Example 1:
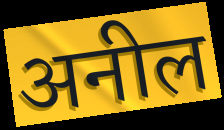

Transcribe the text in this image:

अनील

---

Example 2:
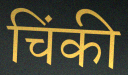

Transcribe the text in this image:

चिंकी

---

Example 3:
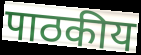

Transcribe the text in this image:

पाठकीय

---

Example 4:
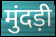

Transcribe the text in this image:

मुंदड़ी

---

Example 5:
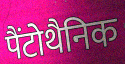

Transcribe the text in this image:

पैंटोथैनिक